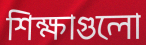
শিক্ষাগুলো